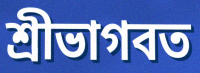
শ্রীভাগবত